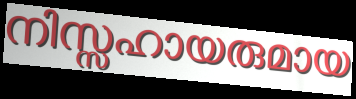
നിസ്സഹായരുമായ